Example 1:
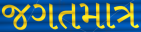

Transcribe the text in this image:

જગતમાત્ર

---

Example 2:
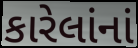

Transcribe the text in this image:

કારેલાંનાં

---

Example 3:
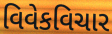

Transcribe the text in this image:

વિવેકવિચાર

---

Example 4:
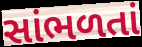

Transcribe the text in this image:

સાંભળતાં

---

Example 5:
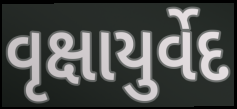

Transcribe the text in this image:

વૃક્ષાયુર્વેદ